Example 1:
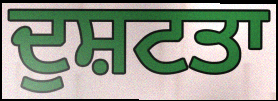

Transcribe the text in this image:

ਦੁਸ਼ਟਤਾ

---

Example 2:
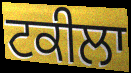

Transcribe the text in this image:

ਟਕੀਲਾ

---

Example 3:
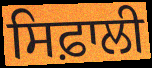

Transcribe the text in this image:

ਸਿਫ਼ਾਲੀ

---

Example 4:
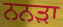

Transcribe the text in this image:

ਨਨੜਾ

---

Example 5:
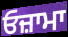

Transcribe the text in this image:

ਓਜ਼ਾਮਾ